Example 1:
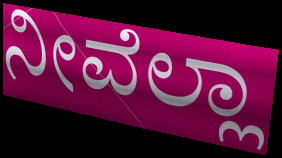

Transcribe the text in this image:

ನೀವೆಲ್ಲಾ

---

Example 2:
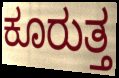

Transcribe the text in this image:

ಕೂರುತ್ತ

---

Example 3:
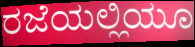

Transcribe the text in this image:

ರಜೆಯಲ್ಲಿಯೂ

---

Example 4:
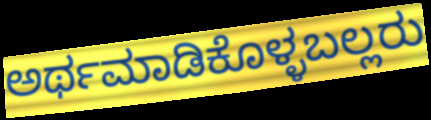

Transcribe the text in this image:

ಅರ್ಥಮಾಡಿಕೊಳ್ಳಬಲ್ಲರು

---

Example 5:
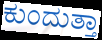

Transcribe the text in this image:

ಕುಂದುತ್ತಾ